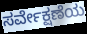
ಸರ್ವೇಕ್ಷಣೆಯ